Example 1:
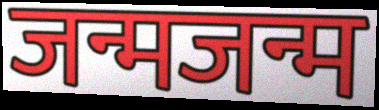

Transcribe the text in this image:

जन्मजन्म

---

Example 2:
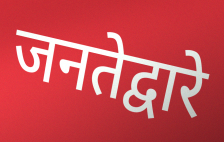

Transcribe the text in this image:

जनतेद्वारे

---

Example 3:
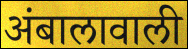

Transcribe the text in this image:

अंबालावाली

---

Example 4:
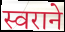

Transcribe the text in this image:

स्वराने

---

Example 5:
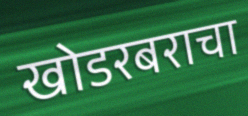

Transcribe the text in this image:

खोडरबराचा